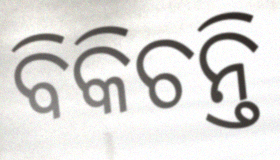
ବିକିଚନ୍ତି